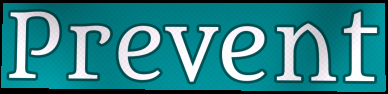
Prevent